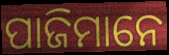
ପାଜିମାନେ